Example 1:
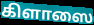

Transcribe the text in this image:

கிளாஸை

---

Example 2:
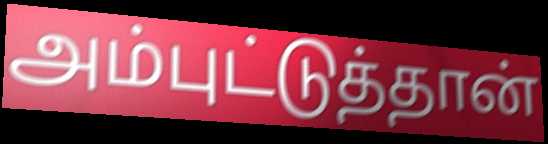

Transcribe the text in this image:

அம்புட்டுத்தான்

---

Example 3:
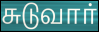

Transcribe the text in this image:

சுடுவார்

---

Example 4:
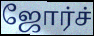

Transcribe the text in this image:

ஜோர்ச்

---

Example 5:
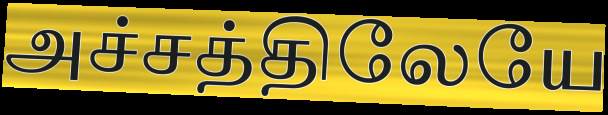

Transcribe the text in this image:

அச்சத்திலேயே